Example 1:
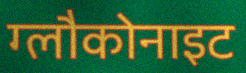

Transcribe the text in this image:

ग्लौकोनाइट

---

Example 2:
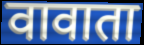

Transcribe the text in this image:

वावाता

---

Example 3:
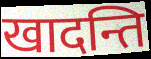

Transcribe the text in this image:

खादन्ति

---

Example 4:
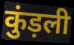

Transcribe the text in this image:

कुंड़ली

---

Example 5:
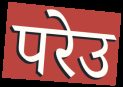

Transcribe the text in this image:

परेउ